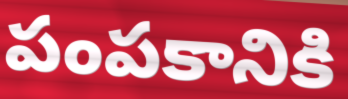
పంపకానికి